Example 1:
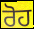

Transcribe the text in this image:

ਰੋਹ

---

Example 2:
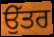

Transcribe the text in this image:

ਉੱਤਰ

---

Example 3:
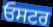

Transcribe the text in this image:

ਓਸਟਰ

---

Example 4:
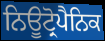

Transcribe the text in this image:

ਨਿਊਟ੍ਰੋਪੈਨਿਕ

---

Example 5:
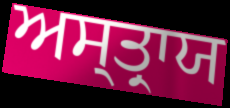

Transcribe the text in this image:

ਅਸ੍ਤ੍ਰਾਯ